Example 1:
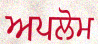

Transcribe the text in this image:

ਅਪਲੋਮ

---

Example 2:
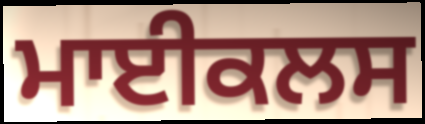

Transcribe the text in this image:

ਮਾਈਕਲਸ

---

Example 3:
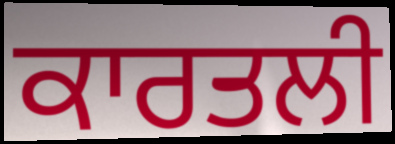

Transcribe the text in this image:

ਕਾਰਤਲੀ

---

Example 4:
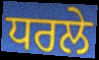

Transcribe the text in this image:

ਧਰਲੇ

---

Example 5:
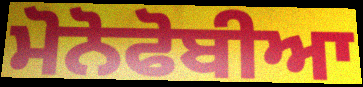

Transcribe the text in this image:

ਮੋਨੋਫੋਬੀਆ